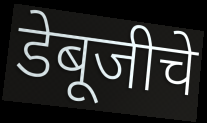
डेबूजीचे